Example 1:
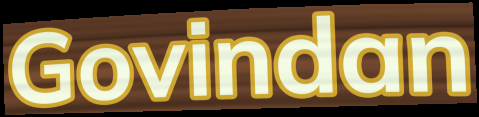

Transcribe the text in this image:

Govindan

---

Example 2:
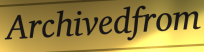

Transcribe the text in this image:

Archivedfrom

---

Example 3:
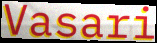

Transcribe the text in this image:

Vasari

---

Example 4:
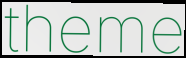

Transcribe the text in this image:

theme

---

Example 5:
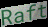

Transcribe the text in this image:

Raft